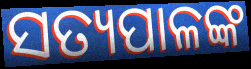
ସତ୍ୟପାଳଙ୍କ